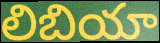
లిబియా